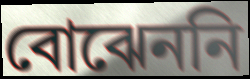
বোঝেননি